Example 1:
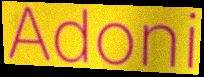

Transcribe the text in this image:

Adoni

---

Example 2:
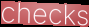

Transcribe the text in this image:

checks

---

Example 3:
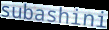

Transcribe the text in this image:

subashini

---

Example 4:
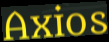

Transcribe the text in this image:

Axios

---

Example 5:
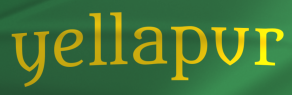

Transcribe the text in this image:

yellapur